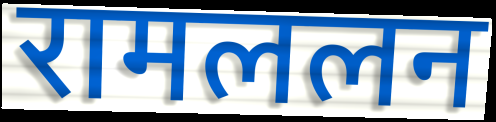
रामललन